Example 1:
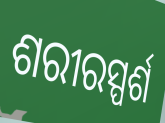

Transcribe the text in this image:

ଶରୀରସ୍ପର୍ଶ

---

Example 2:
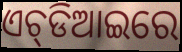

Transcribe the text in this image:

ଏଚ୍‌ଡିଆଇରେ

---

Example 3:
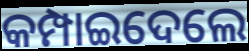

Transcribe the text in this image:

କମ୍ପାଇଦେଲେ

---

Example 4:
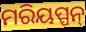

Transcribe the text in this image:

ମରିୟପ୍ପନ୍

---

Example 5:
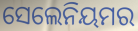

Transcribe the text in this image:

ସେଲେନିୟମର